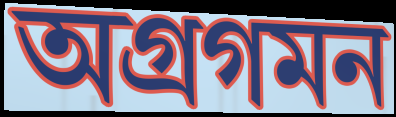
অগ্রগমন